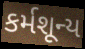
કર્મશૂન્ય